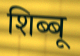
शिब्बू